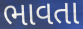
ભાવતા